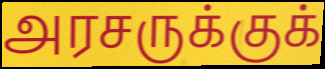
அரசருக்குக்